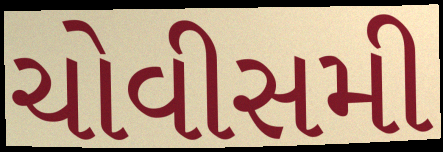
ચોવીસમી